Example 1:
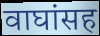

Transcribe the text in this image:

वाघांसह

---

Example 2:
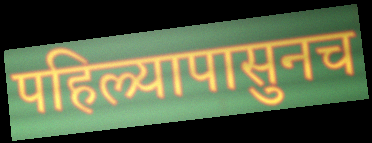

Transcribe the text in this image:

पहिल्यापासुनच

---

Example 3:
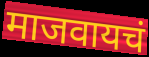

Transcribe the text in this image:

माजवायचं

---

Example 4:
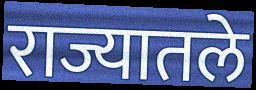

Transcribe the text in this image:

राज्यातले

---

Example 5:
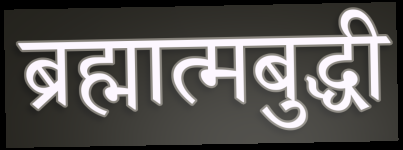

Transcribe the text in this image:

ब्रह्मात्मबुद्धी